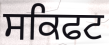
ਸਕਿਫਟ